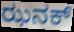
ಝನಕ್